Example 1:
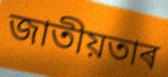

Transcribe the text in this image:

জাতীয়তাৰ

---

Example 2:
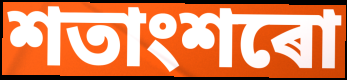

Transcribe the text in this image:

শতাংশৰো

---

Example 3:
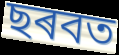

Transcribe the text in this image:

ছৰবত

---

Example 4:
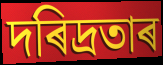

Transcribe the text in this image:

দৰিদ্ৰতাৰ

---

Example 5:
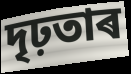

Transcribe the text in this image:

দৃঢ়তাৰ